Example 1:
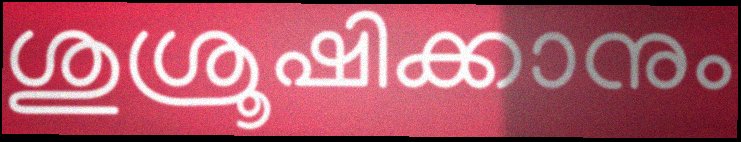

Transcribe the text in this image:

ശുശ്രൂഷിക്കാനും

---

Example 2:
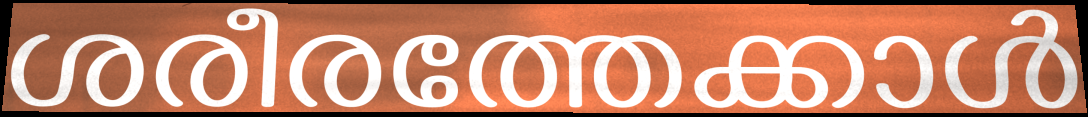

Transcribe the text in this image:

ശരീരത്തേക്കാൾ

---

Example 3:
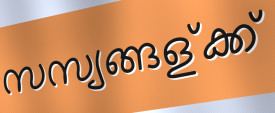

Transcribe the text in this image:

സസ്യങ്ങള്ക്ക്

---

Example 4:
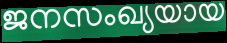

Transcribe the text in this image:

ജനസംഖ്യയായ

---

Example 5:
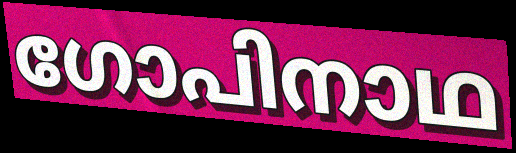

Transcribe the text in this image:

ഗോപിനാഥ